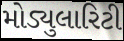
મોડ્યુલારિટી